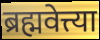
ब्रह्मवेत्त्या